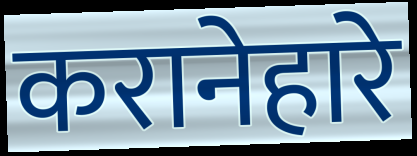
करानेहारे